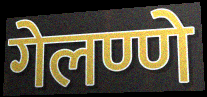
गेलण्णे